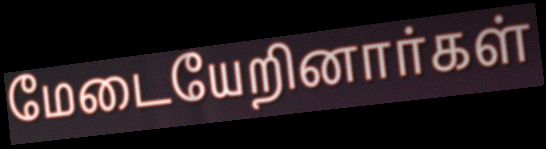
மேடையேறினார்கள்